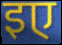
इए